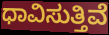
ಧಾವಿಸುತ್ತಿವೆ